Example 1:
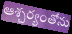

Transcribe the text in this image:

ఆశ్చర్యంతోను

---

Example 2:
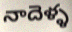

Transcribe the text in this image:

నాదెళ్ళ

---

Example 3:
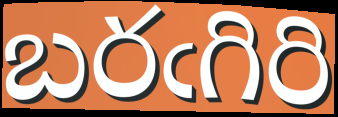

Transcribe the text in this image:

బరఁగిరి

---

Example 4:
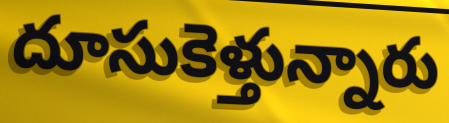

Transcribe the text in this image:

దూసుకెళ్తున్నారు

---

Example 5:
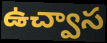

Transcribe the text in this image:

ఉచ్వాస